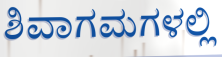
ಶಿವಾಗಮಗಳಲ್ಲಿ